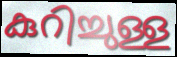
കുറിച്ചുള്ള